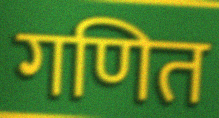
गणित